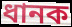
ধানক